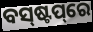
ବସ୍‌ଷ୍ଟପ୍‌ରେ